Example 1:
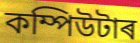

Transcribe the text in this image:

কম্পিউটাৰ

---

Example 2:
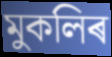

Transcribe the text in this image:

মুকলিৰ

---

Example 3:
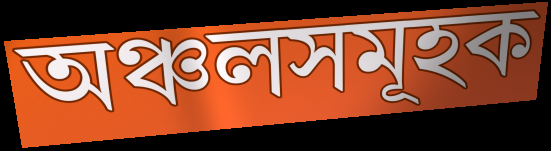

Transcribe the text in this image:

অঞ্চলসমূহক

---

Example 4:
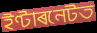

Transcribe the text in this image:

ইণ্টাৰনেটত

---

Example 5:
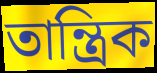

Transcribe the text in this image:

তান্ত্ৰিক